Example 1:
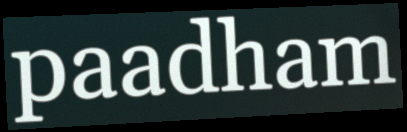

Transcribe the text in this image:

paadham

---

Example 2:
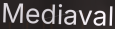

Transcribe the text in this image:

Mediaval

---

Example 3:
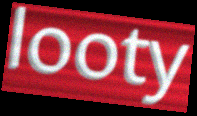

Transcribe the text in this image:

looty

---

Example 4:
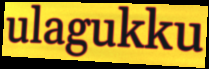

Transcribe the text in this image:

ulagukku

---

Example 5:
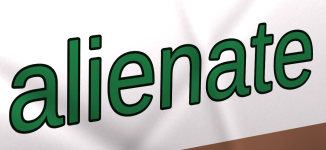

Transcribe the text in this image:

alienate